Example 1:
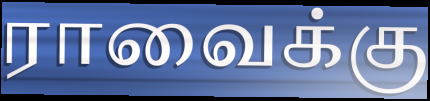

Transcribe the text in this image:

ராவைக்கு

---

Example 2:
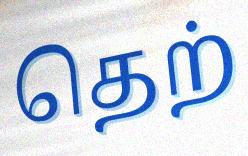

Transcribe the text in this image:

தெற்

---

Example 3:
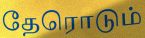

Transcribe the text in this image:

தேரொடும்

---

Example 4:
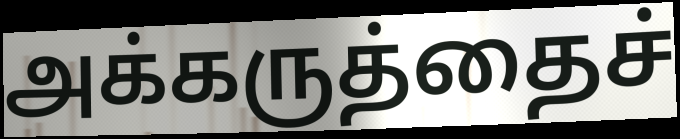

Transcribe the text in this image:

அக்கருத்தைச்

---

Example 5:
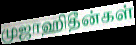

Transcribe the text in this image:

முஜாஹிதீன்கள்